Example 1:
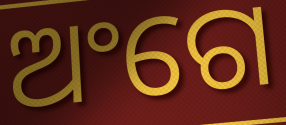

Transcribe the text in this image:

ଅଂଗେ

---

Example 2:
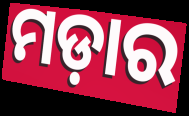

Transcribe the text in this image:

ମଡ଼ାର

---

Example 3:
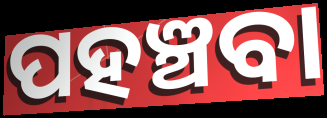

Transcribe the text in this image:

ପହଞ୍ଚବା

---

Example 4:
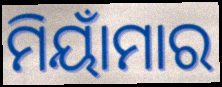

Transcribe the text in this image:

ମିୟାଁମାର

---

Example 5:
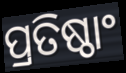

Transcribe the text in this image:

ପ୍ରତିଷ୍ଠାଂ